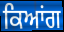
ਕਿਆਂਗ